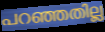
പറഞ്ഞതില്ല